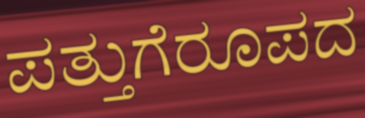
ಪತ್ತುಗೆರೂಪದ